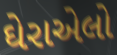
ઘેરાએલો